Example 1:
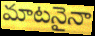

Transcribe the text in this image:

మాటనైనా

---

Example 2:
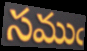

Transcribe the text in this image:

సముఁ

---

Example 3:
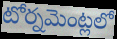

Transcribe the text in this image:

టోర్నమెంట్లలో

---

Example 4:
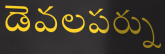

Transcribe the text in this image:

డెవలపర్ను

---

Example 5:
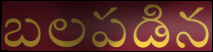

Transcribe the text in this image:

బలపడిన